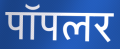
पॉपलर